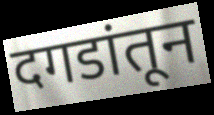
दगडांतून